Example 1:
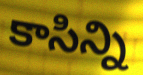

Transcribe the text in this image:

కాసిన్ని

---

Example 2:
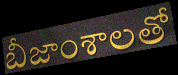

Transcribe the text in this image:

బీజాంశాలతో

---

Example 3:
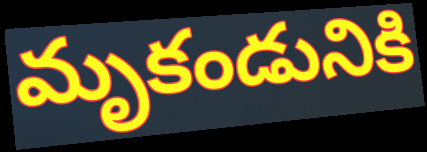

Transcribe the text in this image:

మృకండునికి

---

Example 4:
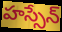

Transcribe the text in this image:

హస్సేన్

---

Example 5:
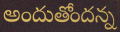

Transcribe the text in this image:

అందుతోందన్న